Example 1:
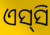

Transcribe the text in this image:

ଏସ୍‍ସି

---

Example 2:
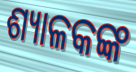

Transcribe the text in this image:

ଶ୍ୟାଳକଙ୍କ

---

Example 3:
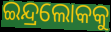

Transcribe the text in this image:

ଇନ୍ଦ୍ରଲୋକକୁ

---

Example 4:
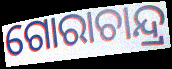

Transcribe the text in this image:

ଗୋରାଚାନ୍ଦ୍ର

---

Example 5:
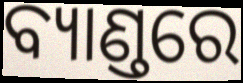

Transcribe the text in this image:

ବ୍ୟାଣ୍ଡରେ